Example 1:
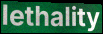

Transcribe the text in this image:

lethality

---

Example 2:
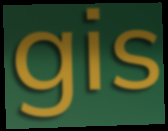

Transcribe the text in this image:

gis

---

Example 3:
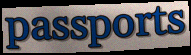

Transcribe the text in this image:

passports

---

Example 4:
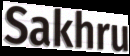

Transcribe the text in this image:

Sakhru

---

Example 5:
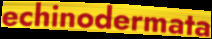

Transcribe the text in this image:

echinodermata